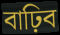
বাঢ়িব